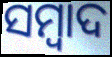
ସମ୍ବାଦ